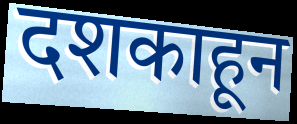
दशकाहून